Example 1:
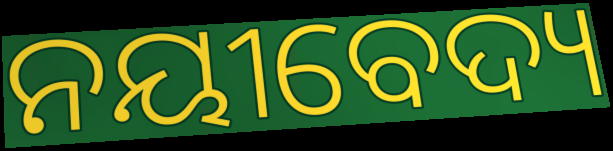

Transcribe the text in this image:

ନୟୀବେଦ୍ୟ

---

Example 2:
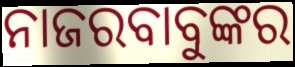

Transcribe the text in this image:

ନାଜରବାବୁଙ୍କର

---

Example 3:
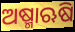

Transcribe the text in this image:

ଅଷ୍ମାଋଷି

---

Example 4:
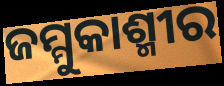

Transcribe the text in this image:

ଜମ୍ମୁକାଶ୍ମୀର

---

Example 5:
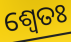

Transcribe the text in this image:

ଶ୍ଵେତଃ